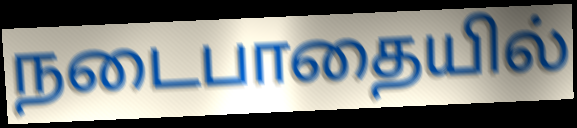
நடைபாதையில்